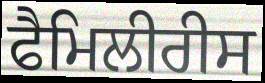
ਫੈਮਿਲੀਰੀਸ